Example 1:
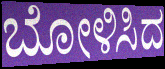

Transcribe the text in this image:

ಬೋಳಿಸಿದ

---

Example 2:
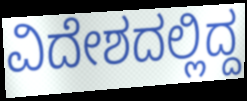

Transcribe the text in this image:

ವಿದೇಶದಲ್ಲಿದ್ದ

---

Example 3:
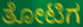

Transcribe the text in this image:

ತೋಟಿಗ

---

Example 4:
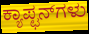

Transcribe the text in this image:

ಕ್ಯಾಪ್ಟನ್‌ಗಳು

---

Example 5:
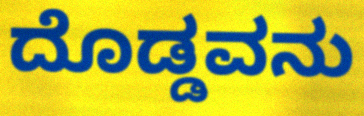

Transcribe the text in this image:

ದೊಡ್ಡವನು